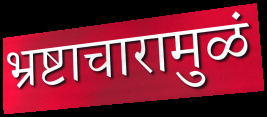
भ्रष्टाचारामुळं